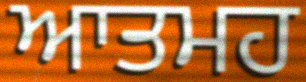
ਆਤਮਹ